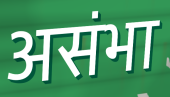
असंभा